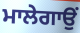
ਮਾਲੇਗਾਉਂ